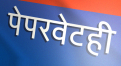
पेपरवेटही